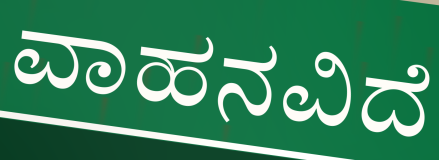
ವಾಹನವಿದೆ